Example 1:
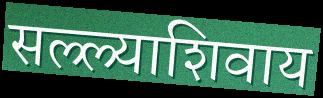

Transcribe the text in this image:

सल्ल्याशिवाय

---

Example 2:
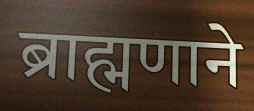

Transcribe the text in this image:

ब्राह्मणाने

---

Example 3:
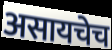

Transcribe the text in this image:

असायचेच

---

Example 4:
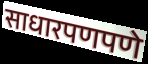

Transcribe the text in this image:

साधारपणपणे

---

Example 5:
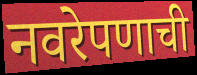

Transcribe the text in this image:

नवरेपणाची